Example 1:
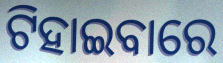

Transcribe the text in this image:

ଟିହାଇବାରେ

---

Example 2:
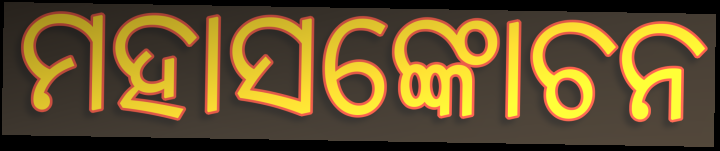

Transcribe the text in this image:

ମହାସଙ୍କୋଚନ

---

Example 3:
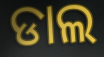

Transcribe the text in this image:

ଡାଲ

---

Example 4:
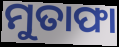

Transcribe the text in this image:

ମୁତାଫା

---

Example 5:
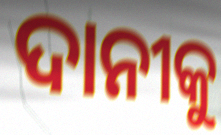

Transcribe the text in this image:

ଦାନୀକୁ